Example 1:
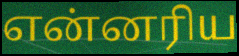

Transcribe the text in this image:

என்னரிய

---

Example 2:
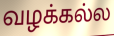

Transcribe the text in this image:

வழக்கல்ல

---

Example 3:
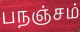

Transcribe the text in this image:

பநஞ்சம்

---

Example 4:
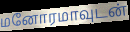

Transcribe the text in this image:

மனோரமாவுடன்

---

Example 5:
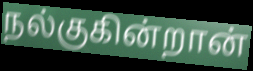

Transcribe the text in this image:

நல்குகின்றான்